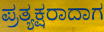
ಪ್ರತ್ಯಕ್ಷರಾದಾಗ